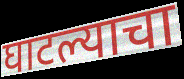
घाटल्याचा